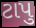
ટાપુ